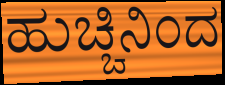
ಹುಚ್ಚಿನಿಂದ